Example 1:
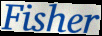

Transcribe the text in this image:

Fisher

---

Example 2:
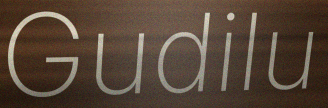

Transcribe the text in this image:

Gudilu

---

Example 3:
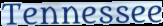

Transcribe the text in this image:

Tennessee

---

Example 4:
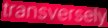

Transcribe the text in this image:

transversely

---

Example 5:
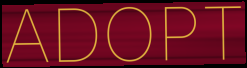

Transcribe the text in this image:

ADOPT